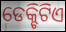
ଡେକ୍ଚିଟିଏ